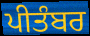
ਪੀਤੰਬਰ